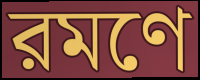
রমণে